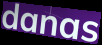
danas